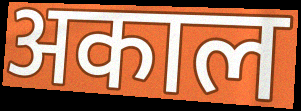
अकाल